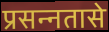
प्रसन्नतासे